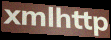
xmlhttp